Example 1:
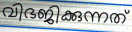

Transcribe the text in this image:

വിഭജിക്കുന്നത്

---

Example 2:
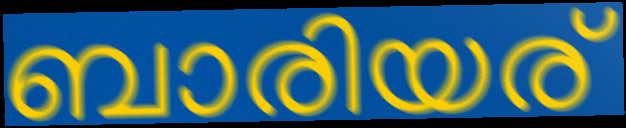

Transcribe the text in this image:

ബാരിയര്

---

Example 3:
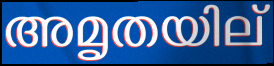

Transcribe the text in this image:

അമൃതയില്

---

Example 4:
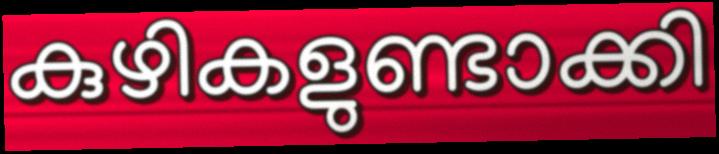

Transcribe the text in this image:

കുഴികളുണ്ടാക്കി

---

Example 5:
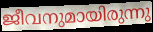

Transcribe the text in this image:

ജീവനുമായിരുന്നു